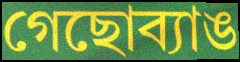
গেছোব্যাঙ